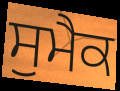
ਸੁਮੈਕ